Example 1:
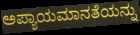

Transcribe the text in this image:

ಅಪ್ಯಾಯಮಾನತೆಯನ್ನು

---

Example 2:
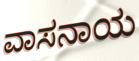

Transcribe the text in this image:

ವಾಸನಾಯ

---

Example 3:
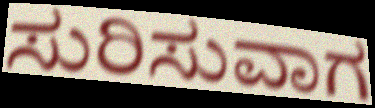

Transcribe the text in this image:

ಸುರಿಸುವಾಗ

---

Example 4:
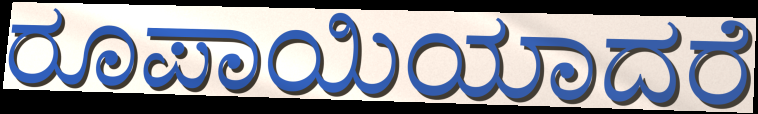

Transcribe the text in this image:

ರೂಪಾಯಿಯಾದರೆ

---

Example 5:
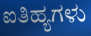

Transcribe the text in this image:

ಐತಿಹ್ಯಗಳು